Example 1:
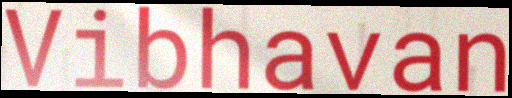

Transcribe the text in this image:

Vibhavan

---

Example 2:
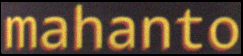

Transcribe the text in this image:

mahanto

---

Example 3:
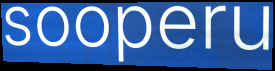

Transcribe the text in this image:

sooperu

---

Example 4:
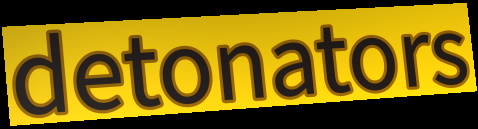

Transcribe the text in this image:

detonators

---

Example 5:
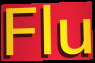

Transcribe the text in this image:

Flu